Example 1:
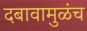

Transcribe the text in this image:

दबावामुळंच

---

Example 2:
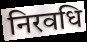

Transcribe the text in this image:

निरवधि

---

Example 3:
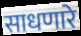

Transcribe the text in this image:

साधणारे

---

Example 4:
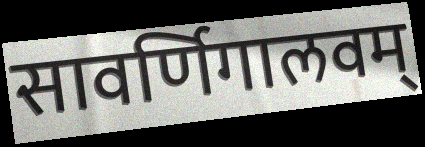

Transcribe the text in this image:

सावर्णिगालवम्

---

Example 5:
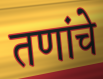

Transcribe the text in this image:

तणांचे